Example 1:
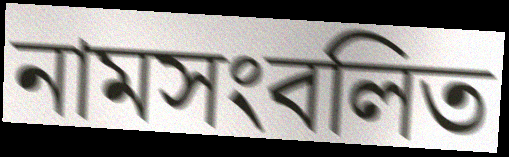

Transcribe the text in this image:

নামসংবলিত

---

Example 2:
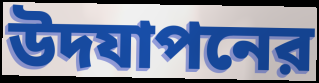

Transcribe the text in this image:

উদযাপনের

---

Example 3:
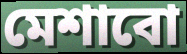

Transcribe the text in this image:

মেশাবো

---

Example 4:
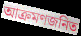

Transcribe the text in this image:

আক্রমণজনিত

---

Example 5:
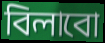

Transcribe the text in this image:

বিলাবো